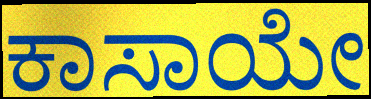
ಕಾಸಾಯೇ